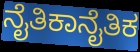
ನೈತಿಕಾನೈತಿಕ